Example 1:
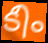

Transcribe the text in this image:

ടീം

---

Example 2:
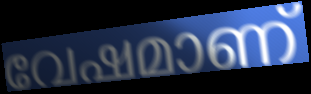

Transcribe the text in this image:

വേഷമാണ്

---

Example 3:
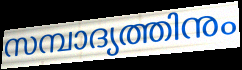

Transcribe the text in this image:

സമ്പാദ്യത്തിനും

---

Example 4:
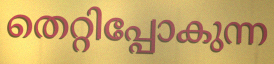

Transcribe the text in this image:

തെറ്റിപ്പോകുന്ന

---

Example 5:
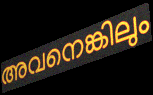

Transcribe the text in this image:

അവനെങ്കിലും